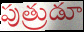
పుత్రుడూ